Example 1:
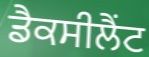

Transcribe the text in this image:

ਡੈਕਸੀਲੈਂਟ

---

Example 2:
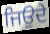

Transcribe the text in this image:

ਜਿਉਦੇ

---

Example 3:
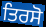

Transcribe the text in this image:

ਤਿਰਸੋ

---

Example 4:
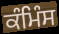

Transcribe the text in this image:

ਕੰਮਿੰਸ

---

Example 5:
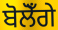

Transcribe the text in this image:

ਬੋਲੋਁਗੇ